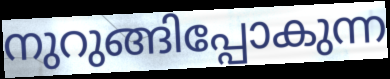
നുറുങ്ങിപ്പോകുന്ന